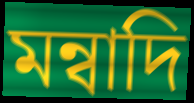
মন্বাদি